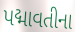
પદ્માવતીના